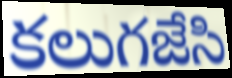
కలుగజేసి